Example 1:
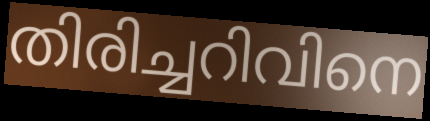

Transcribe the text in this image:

തിരിച്ചറിവിനെ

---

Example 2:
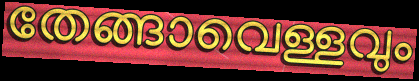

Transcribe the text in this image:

തേങ്ങാവെള്ളവും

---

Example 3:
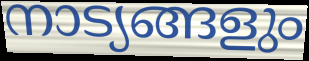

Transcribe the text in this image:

നാട്യങ്ങളും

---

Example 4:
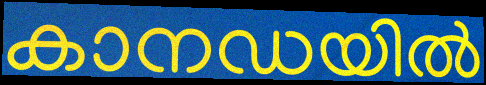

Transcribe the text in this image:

കാനഡയിൽ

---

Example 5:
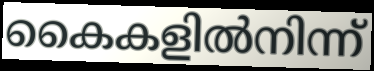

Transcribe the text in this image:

കൈകളിൽനിന്ന്